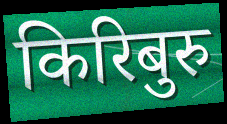
किरिबुरु